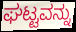
ಘಟ್ಟವನ್ನು